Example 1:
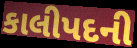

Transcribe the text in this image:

કાલીપદની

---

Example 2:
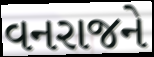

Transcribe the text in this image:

વનરાજને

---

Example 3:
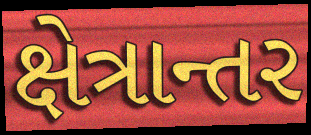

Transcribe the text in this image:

ક્ષેત્રાન્તર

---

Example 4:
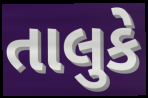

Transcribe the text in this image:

તાલુકે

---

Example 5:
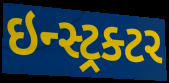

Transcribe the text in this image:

ઇન્સ્ટ્રક્ટર